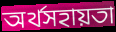
অর্থসহায়তা